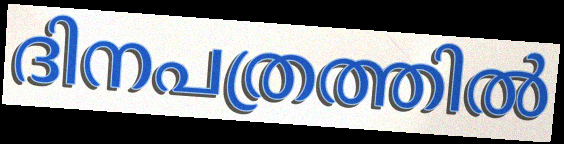
ദിനപത്രത്തിൽ